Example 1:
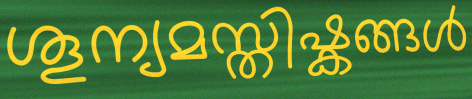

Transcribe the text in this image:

ശൂന്യമസ്തിഷ്കങ്ങൾ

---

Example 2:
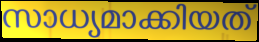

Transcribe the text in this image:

സാധ്യമാക്കിയത്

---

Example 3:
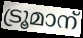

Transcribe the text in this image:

ട്രൂമാന്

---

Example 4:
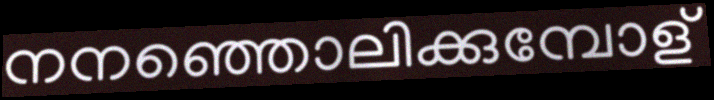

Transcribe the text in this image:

നനഞ്ഞൊലിക്കുമ്പോള്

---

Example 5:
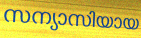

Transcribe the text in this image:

സന്യാസിയായ